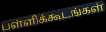
பள்ளிக்கூடங்கள்